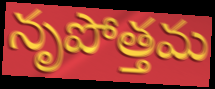
నృపోత్తమ